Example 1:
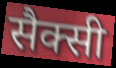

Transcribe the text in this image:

सैक्सी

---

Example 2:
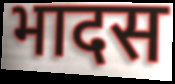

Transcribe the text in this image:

भादस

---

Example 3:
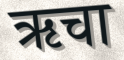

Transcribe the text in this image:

ऋचा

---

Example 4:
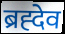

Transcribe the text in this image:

ब्रह्देव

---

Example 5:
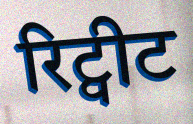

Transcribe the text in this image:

रिट्वीट